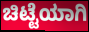
ಚಿಟ್ಟೆಯಾಗಿ